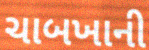
ચાબખાની